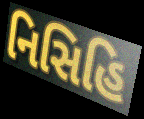
નિસિહિ